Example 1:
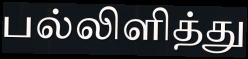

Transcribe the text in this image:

பல்லிளித்து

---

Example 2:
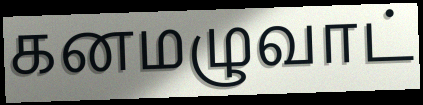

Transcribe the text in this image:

கனமழுவாட்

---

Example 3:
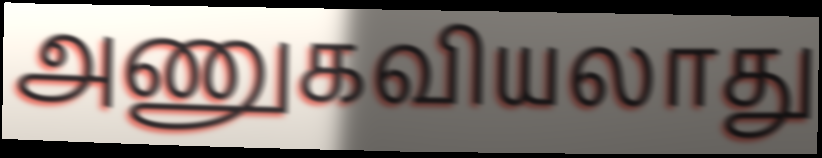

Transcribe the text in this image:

அணுகவியலாது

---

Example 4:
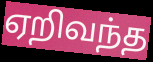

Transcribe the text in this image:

ஏறிவந்த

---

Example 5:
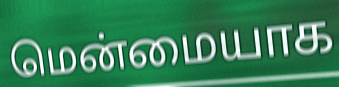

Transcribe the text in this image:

மென்மையாக